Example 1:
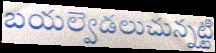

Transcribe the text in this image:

బయల్వెడలుచున్నట్టి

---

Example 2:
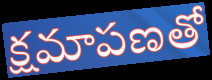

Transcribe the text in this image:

క్షమాపణతో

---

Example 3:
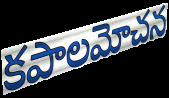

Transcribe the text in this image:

కపాలమోచన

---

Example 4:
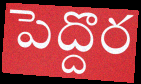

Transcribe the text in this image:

పెద్దొర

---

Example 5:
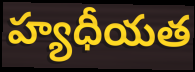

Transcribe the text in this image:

హ్యధీయత